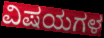
ವಿಷಯಗಳ